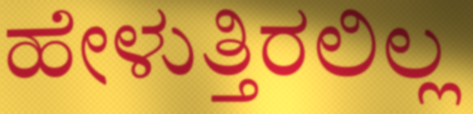
ಹೇಳುತ್ತಿರಲಿಲ್ಲ